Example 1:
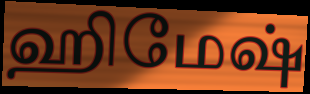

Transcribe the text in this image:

ஹிமேஷ்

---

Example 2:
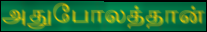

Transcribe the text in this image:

அதுபோலத்தான்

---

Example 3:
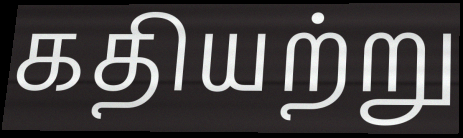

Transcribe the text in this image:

கதியற்று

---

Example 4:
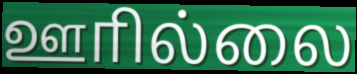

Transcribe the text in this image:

ஊரில்லை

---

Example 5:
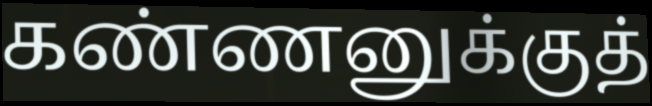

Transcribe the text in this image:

கண்ணனுக்குத்